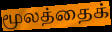
மூலத்தைக்